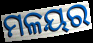
ମଳୟର